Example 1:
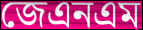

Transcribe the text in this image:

জেএনএম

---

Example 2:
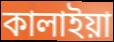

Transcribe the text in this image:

কালাইয়া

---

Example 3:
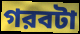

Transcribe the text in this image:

গরবটা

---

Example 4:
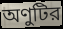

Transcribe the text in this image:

অণুটির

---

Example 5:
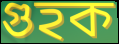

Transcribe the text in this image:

গুহক